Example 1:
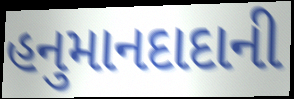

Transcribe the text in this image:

હનુમાનદાદાની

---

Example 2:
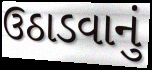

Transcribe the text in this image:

ઉઠાડવાનું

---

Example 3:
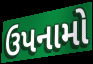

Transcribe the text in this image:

ઉપનામો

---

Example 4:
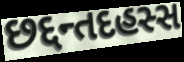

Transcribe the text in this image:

છદ્દન્તદહસ્સ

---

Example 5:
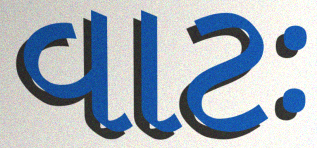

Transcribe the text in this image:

વાટઃ